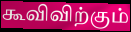
கூவிவிற்கும்